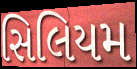
સિલિયમ